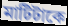
মাটিটাকে